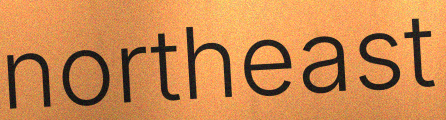
northeast